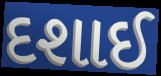
દશાઈ